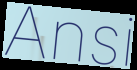
Ansi